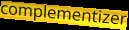
complementizer